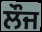
ਲੌਜ